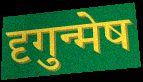
दृगुन्मेष